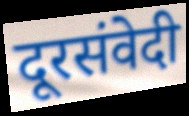
दूरसंवेदी